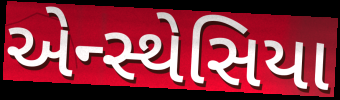
એન્સ્થેસિયા